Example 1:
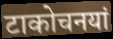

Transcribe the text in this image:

टाकोचनयां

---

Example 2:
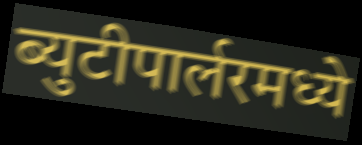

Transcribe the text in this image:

ब्युटीपार्लरमध्ये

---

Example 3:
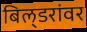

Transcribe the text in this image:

बिल्डरांवर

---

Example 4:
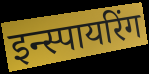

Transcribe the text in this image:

इन्स्पायरिंग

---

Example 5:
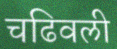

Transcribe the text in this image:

चढिवली